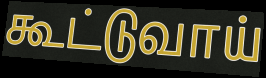
கூட்டுவாய்